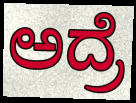
ಅದ್ರೆ